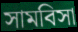
সামবিসা